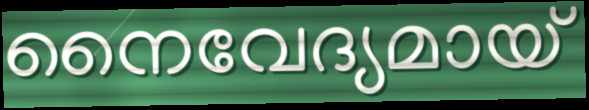
നൈവേദ്യമായ്